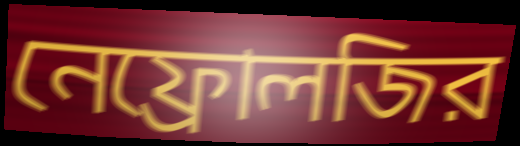
নেফ্রোলজির